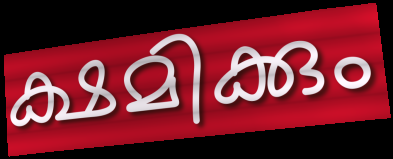
ക്ഷമിക്കും